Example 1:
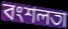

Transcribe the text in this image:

বংশলতা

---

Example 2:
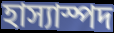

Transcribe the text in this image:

হাস্যাস্পদ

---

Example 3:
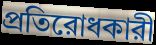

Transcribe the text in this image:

প্রতিরোধকারী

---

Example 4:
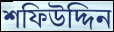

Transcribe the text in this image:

শফিউদ্দিন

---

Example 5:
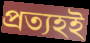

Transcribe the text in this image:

প্রত্যহই